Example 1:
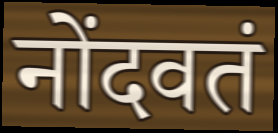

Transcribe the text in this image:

नोंदवतं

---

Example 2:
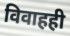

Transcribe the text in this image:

विवाहही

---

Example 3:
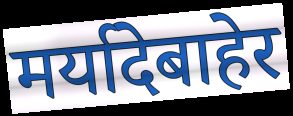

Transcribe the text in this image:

मर्यादेबाहेर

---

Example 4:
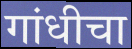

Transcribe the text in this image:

गांधीचा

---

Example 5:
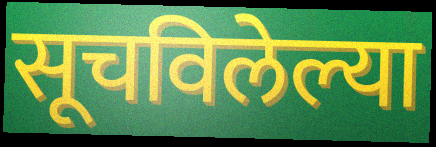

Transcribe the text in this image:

सूचविलेल्या